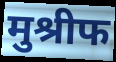
मुश्रीफ